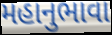
મહાનુભાવા